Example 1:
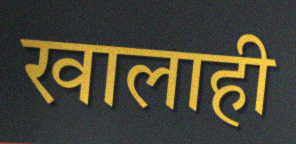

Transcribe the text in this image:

खालाही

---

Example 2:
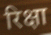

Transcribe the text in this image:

रिक्षा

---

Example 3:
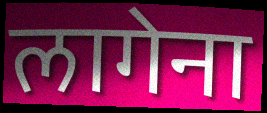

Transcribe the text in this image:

लागेना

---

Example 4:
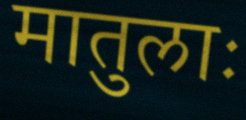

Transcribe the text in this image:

मातुलाः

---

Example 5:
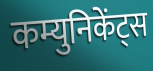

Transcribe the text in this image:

कम्युनिकेंट्स